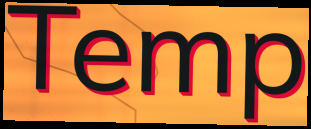
Temp